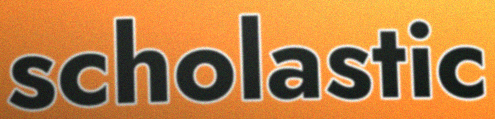
scholastic